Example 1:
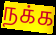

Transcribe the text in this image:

நக்க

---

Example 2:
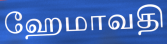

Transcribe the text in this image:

ஹேமாவதி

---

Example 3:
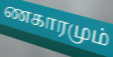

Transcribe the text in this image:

ணகாரமும்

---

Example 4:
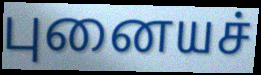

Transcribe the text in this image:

புனையச்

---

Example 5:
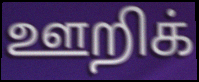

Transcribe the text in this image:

ஊறிக்